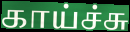
காய்ச்சு